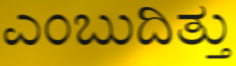
ಎಂಬುದಿತ್ತು